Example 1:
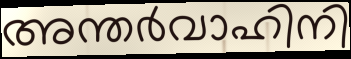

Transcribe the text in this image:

അന്തർവാഹിനി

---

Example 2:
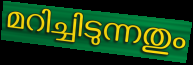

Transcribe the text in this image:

മറിച്ചിടുന്നതും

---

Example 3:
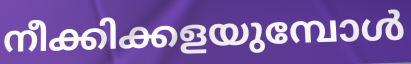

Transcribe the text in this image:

നീക്കിക്കളയുമ്പോൾ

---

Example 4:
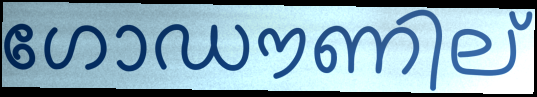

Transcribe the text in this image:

ഗോഡൗണില്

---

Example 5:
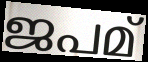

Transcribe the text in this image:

ജപമ്